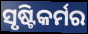
ସୃଷ୍ଟିକର୍ମର